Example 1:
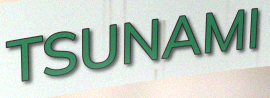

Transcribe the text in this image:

TSUNAMI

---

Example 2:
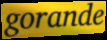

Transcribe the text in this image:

gorande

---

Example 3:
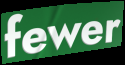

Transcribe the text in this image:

fewer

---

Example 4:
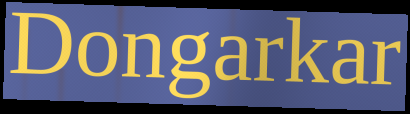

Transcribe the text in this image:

Dongarkar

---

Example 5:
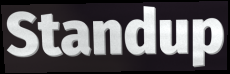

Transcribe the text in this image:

Standup